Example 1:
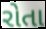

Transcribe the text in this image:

રોતા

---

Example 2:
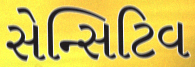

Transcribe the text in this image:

સેન્સિટિવ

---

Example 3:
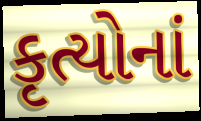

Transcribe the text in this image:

કૃત્યોનાં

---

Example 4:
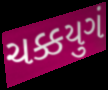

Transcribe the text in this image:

ચક્કયુગં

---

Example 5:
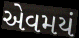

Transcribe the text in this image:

એવમયં